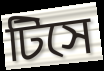
টিসে